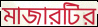
মাজারটির